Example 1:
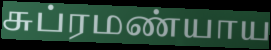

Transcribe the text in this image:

சுப்ரமண்யாய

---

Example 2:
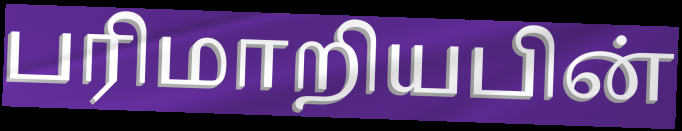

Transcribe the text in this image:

பரிமாறியபின்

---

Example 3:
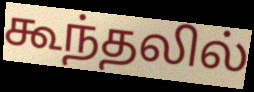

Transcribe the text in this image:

கூந்தலில்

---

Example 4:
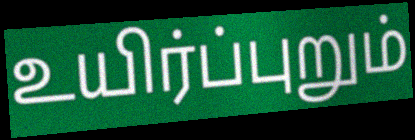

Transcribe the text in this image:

உயிர்ப்புறும்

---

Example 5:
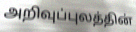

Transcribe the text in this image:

அறிவுப்புலத்தின்